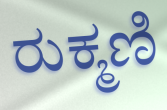
ರುಕ್ಮಣಿ